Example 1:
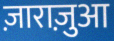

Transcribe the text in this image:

ज़ाराज़ुआ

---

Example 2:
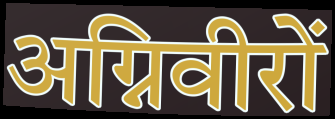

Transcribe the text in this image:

अग्निवीरों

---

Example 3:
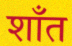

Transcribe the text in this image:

शाँत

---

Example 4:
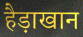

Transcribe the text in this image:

हैड़ाखान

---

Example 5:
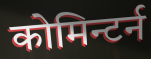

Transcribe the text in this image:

कोमिन्टर्न